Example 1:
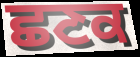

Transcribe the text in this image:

ਛਣਕ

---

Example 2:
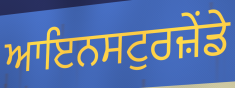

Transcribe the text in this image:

ਆਇਨਸਟੁਰਜ਼ੇਂਡੇ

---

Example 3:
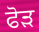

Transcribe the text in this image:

ਫੋਡ਼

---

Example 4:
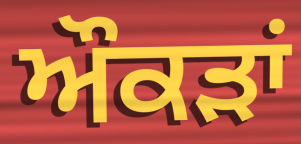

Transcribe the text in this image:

ਔਕਡ਼ਾਂ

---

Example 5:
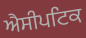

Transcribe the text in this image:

ਐਸੀਪਟਿਕ